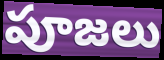
పూజలు